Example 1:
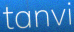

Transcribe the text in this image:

tanvi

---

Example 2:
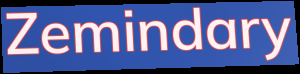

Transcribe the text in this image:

Zemindary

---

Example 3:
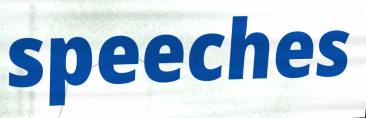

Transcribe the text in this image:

speeches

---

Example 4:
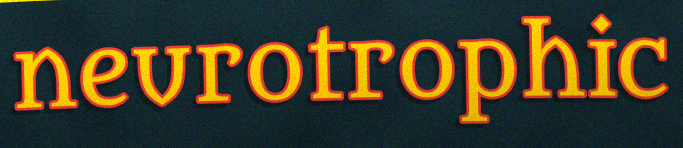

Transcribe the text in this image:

neurotrophic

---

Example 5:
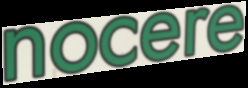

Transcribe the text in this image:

nocere